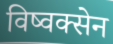
विष्वक्सेन